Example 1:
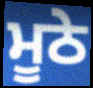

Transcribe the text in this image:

ਮੂਠੇ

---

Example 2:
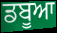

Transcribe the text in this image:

ਡਬੂਆ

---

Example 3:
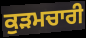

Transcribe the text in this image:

ਕੁੜਮਚਾਰੀ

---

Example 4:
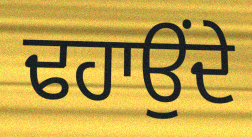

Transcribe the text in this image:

ਢਹਾਉਂਦੇ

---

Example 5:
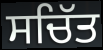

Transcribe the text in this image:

ਸਚਿੱਤ